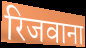
रिजवाना